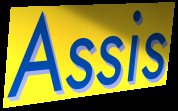
Assis